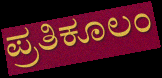
ಪ್ರತಿಕೂಲಂ